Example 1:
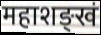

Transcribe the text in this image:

महाशङ्खं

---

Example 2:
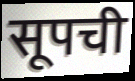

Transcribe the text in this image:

सूपची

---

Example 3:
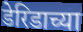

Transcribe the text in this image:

डेरिडाच्या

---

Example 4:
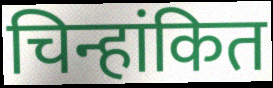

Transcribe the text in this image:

चिन्हांकित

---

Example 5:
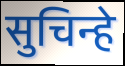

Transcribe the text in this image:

सुचिन्हे